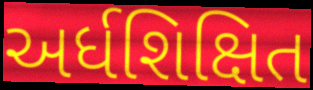
અર્ધશિક્ષિત